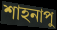
শাহনাপু